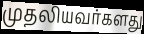
முதலியவர்களது